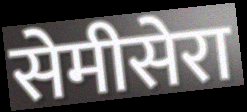
सेमीसेरा